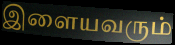
இளையவரும்